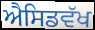
ਐਸਿਡਵੱਖ